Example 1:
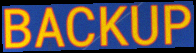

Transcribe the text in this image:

BACKUP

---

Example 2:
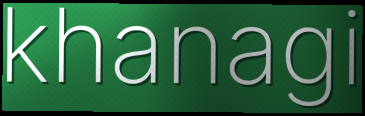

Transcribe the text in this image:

khanagi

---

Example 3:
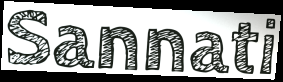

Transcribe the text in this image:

Sannati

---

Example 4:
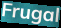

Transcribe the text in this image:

Frugal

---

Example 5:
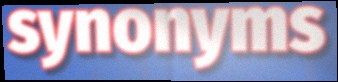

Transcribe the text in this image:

synonyms